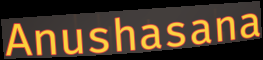
Anushasana